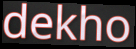
dekho